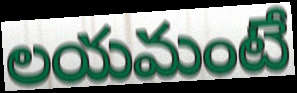
లయమంటే